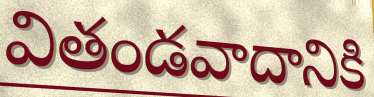
వితండవాదానికి